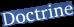
Doctrine